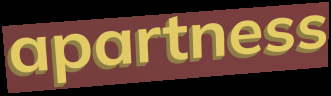
apartness